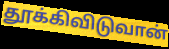
தூக்கிவிடுவான்